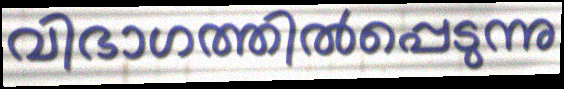
വിഭാഗത്തിൽപ്പെടുന്നു